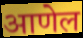
आणेल